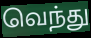
வெந்து